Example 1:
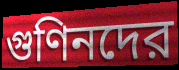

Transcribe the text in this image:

গুণিনদের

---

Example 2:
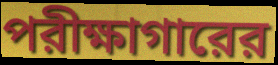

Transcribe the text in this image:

পরীক্ষাগারের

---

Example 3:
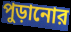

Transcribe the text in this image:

পুড়ানোর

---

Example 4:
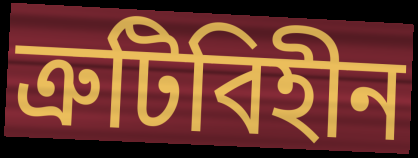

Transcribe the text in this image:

ত্রুটিবিহীন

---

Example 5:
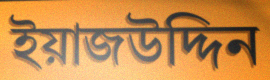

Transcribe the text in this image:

ইয়াজউদ্দিন